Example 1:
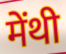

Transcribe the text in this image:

मेंथी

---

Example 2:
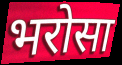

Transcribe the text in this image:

भरोसा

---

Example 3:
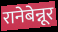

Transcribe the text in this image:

रानेबेन्नूर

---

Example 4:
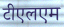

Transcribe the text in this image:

टीएलएम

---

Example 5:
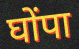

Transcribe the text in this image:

घोंपा